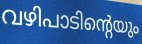
വഴിപാടിന്റെയും